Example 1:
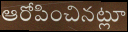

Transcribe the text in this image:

ఆరోపించినట్లూ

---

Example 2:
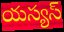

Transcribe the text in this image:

యస్యస్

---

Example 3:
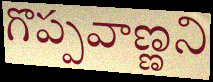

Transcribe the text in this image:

గొప్పవాణ్ణని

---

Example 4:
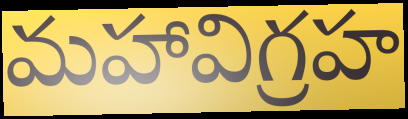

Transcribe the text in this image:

మహావిగ్రహ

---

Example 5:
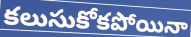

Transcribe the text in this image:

కలుసుకోకపోయినా